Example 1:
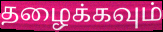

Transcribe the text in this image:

தழைக்கவும்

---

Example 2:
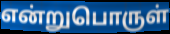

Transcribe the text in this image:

என்றுபொருள்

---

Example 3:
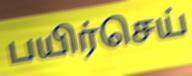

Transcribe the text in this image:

பயிர்செய்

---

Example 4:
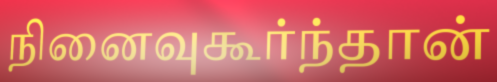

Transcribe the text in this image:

நினைவுகூர்ந்தான்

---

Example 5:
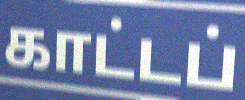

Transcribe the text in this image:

காட்டப்